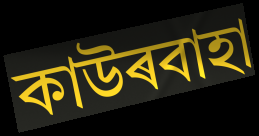
কাউৰবাহা